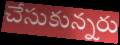
చేసుకున్నరు